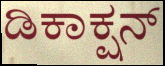
ಡಿಕಾಕ್ಷನ್